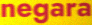
negara